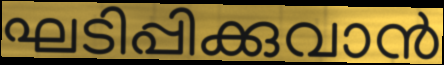
ഘടിപ്പിക്കുവാൻ